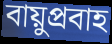
বায়ুপ্রবাহ